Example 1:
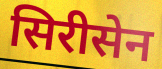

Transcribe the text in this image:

सिरीसेन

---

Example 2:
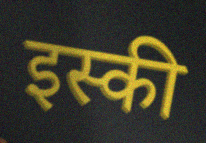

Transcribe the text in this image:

इस्की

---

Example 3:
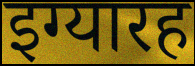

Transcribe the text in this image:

इग्यारह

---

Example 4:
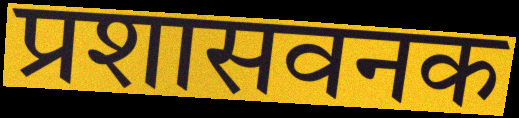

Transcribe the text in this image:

प्रशासवनक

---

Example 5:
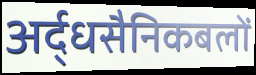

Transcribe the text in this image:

अर्द्धसैनिकबलों